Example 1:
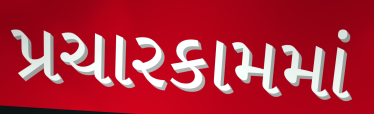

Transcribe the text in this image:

પ્રચારકામમાં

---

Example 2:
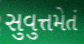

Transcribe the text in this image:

સુવુત્તમેતં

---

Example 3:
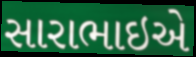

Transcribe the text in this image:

સારાભાઇએ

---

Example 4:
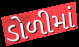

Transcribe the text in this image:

ડોળીમાં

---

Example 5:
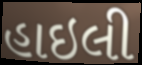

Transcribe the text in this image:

હાઇલી